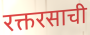
रक्तरसाची